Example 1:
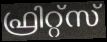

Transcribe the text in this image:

ഫ്രിറ്റ്സ്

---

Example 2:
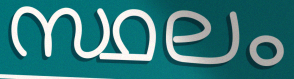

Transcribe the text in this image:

സ്ഥലം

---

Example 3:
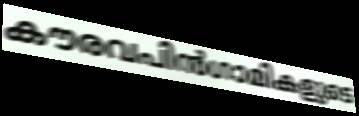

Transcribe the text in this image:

കൗരവപിൻഗാമികളുടെ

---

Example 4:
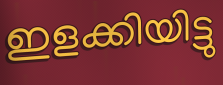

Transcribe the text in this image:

ഇളക്കിയിട്ടു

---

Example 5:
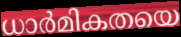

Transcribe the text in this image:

ധാർമികതയെ